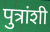
पुत्रांशी